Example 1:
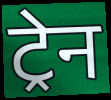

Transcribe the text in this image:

ट्रेन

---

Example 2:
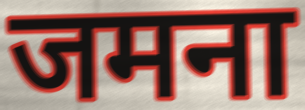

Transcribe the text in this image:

जमना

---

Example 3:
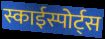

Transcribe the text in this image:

स्काईस्पोर्ट्स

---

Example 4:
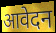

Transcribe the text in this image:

आवेदन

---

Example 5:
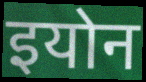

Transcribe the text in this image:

इयोन